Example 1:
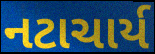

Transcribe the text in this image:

નટાચાર્ય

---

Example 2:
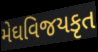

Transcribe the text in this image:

મેઘવિજયકૃત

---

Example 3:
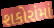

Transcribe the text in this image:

શકોરાંમાં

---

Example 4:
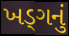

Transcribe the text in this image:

ખડ્ગનું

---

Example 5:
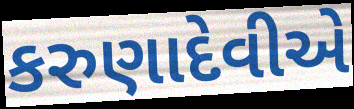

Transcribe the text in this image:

કરુણાદેવીએ